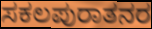
ಸಕಲಪುರಾತನರ